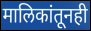
मालिकांतूनही